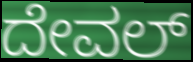
ದೇವಲ್